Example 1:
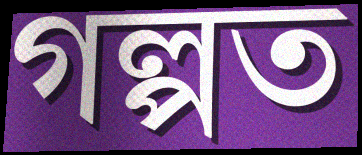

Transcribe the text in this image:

গল্পত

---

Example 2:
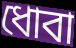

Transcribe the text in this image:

ধোবা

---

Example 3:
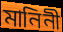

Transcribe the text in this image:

মানিনী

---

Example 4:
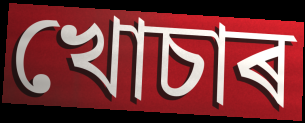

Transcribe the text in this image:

খোচাৰ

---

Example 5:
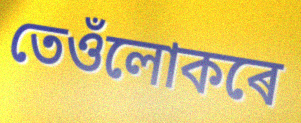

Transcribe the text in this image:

তেওঁলোকৰে